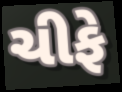
ચીફે